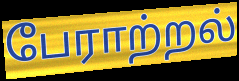
பேராற்றல்